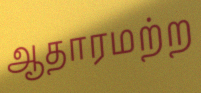
ஆதாரமற்ற